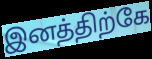
இனத்திற்கே